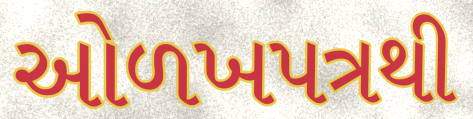
ઓળખપત્રથી